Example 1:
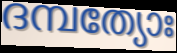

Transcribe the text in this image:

ദമ്പത്യോഃ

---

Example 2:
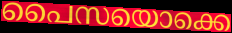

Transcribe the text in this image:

പൈസയൊക്കെ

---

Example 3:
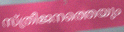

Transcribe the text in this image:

സ്ത്രീജനത്തെയും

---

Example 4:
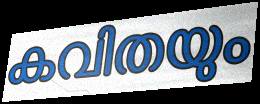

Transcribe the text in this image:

കവിതയും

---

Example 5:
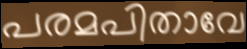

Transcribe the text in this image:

പരമപിതാവേ